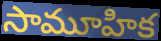
సామూహిక